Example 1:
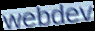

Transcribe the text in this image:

webdev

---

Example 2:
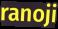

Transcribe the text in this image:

ranoji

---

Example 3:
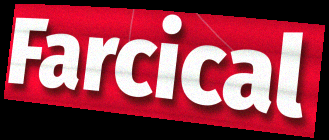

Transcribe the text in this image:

Farcical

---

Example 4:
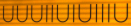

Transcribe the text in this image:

UUUIIUIUIIIU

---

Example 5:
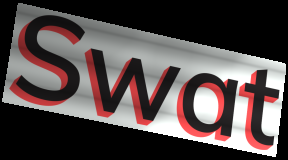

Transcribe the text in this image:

Swat